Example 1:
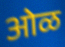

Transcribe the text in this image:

ओळ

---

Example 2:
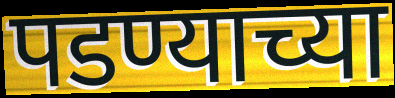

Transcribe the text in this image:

पडण्याच्या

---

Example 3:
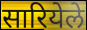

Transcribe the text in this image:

सारियेले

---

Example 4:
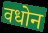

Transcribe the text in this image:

वधोन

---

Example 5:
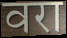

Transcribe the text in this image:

वरा